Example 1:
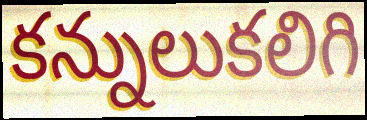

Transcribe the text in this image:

కన్నులుకలిగి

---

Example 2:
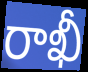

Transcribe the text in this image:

రాఖీ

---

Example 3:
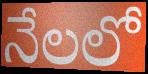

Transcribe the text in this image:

నేలలో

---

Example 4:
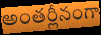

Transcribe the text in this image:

అంతర్లీనంగా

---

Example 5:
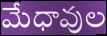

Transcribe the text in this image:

మేధావుల